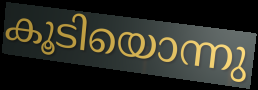
കൂടിയൊന്നു